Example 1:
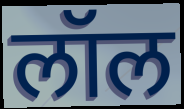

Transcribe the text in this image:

लॉल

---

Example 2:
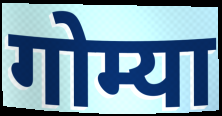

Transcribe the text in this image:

गोम्या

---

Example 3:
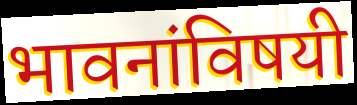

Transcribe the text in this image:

भावनांविषयी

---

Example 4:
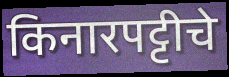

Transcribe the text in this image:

किनारपट्टीचे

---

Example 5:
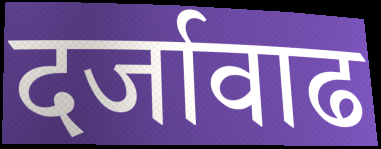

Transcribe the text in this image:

दर्जावाढ